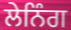
ਲੇਨਿੰਗ